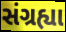
સંગ્રહ્યા